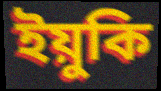
ইয়ুকি